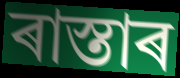
ৰাস্তাৰ